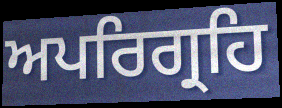
ਅਪਰਿਗ੍ਰਹਿ